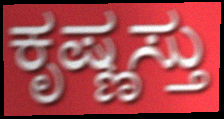
ಕೃಷ್ಣಸ್ತು